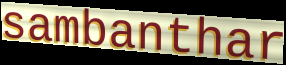
sambanthar